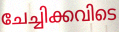
ചേച്ചിക്കവിടെ